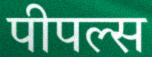
पीपल्स